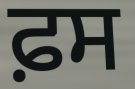
ਫ਼ਸ